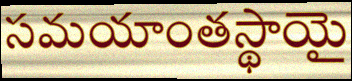
సమయాంతస్థాయై